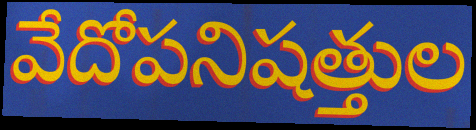
వేదోపనిషత్తుల